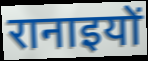
रानाइयों